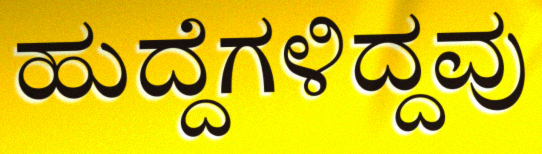
ಹುದ್ದೆಗಳಿದ್ದವು